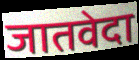
जातवेदा